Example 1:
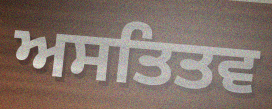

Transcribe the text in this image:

ਅਸਤਿਤਵ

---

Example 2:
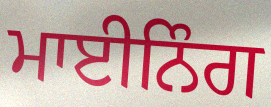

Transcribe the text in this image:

ਮਾਈਨਿੰਗ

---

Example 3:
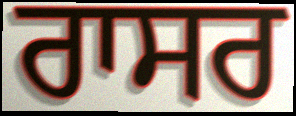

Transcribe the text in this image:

ਰਾਸਰ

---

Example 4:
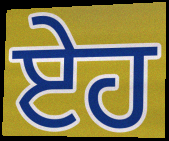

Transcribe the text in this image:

ਏਹ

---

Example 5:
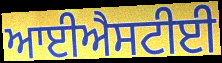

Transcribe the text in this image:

ਆਈਐਸਟੀਈ